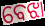
ବେଝା